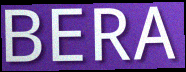
BERA